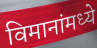
विमानांमध्ये